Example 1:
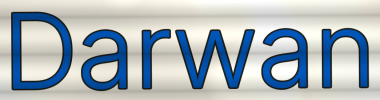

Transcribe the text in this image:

Darwan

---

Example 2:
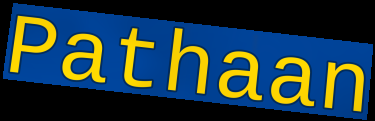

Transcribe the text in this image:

Pathaan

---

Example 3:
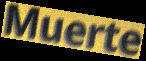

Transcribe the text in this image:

Muerte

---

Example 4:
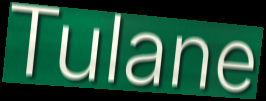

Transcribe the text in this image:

Tulane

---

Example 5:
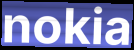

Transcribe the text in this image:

nokia